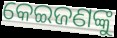
କେଇଜଣଙ୍କୁ